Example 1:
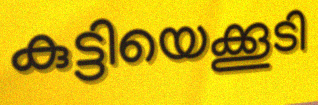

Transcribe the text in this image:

കുട്ടിയെക്കൂടി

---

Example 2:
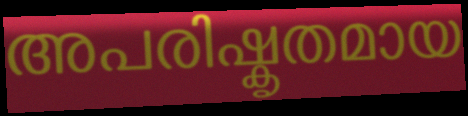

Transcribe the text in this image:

അപരിഷ്കൃതമായ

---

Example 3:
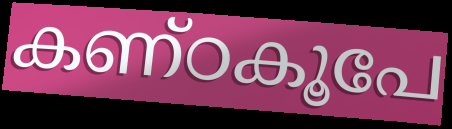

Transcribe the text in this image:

കണ്ഠകൂപേ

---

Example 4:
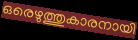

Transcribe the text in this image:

ഒരെഴുത്തുകാരനായി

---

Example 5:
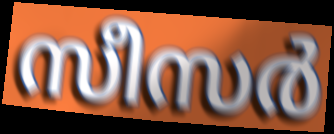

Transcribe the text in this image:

സീസർ